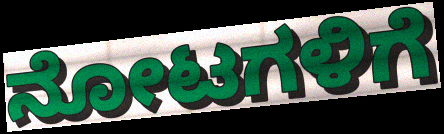
ನೋಟಗಳಿಗೆ